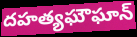
దహత్యఘౌఘాన్